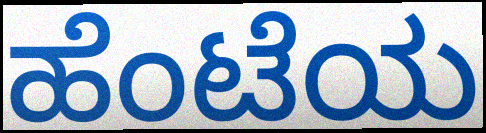
ಹೆಂಟೆಯ